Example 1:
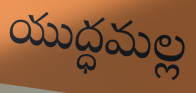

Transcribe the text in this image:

యుద్ధమల్ల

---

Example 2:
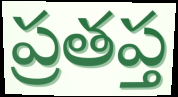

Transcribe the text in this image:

ప్రతప్త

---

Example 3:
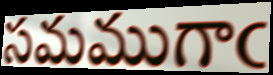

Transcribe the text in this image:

సమముగాఁ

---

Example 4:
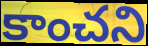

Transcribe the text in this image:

కాంచని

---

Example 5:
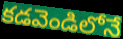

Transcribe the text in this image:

కడవెండిలోనే